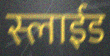
स्लाईड